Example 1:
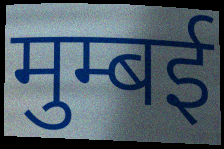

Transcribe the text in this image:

मुम्बई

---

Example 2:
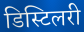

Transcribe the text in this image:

डिस्टिलरी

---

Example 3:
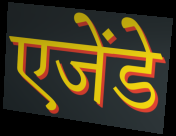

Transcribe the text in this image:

एजेंडे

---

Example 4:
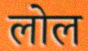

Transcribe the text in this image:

लोल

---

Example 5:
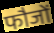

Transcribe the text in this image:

फौजों